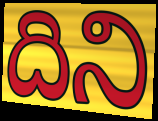
దిని